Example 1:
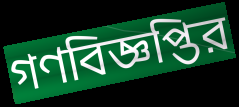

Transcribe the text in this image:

গণবিজ্ঞপ্তির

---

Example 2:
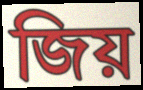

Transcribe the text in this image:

জিয়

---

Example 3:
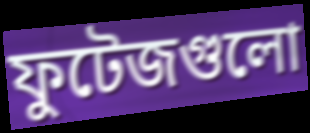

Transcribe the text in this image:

ফুটেজগুলো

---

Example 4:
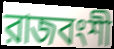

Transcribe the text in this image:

রাজবংশী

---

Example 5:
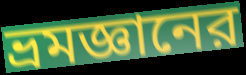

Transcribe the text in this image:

ভ্রমজ্ঞানের